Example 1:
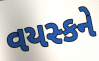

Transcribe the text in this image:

વયસ્કને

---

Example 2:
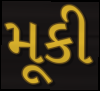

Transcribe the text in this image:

મૂકી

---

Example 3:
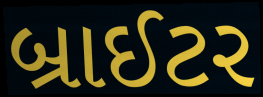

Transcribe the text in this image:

બ્રાઈટર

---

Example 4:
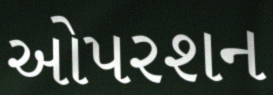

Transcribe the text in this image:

ઓપરશન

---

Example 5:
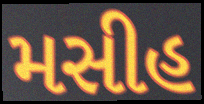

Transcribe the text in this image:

મસીહ